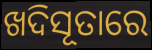
ଖଦିସୂତାରେ